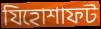
যিহোশাফট